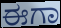
ಈಗಾ